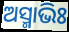
ଅସ୍ମାଭିଃ